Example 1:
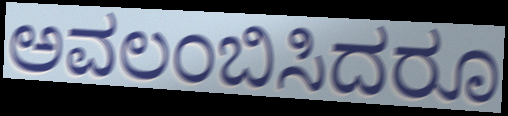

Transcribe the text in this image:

ಅವಲಂಬಿಸಿದರೂ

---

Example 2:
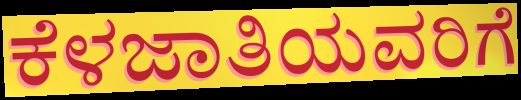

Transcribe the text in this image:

ಕೆಳಜಾತಿಯವರಿಗೆ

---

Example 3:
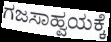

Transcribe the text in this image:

ಗಜಸಾಹ್ವಯಕ್ಕೆ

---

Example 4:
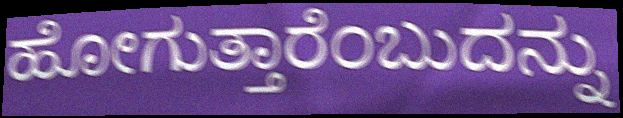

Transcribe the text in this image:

ಹೋಗುತ್ತಾರೆಂಬುದನ್ನು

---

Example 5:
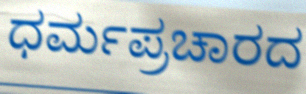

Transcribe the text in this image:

ಧರ್ಮಪ್ರಚಾರದ